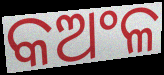
କଅଂଳ